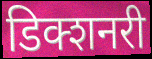
डिक्शनरी